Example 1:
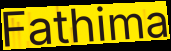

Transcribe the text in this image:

Fathima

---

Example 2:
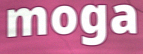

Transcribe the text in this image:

moga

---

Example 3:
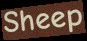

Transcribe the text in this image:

Sheep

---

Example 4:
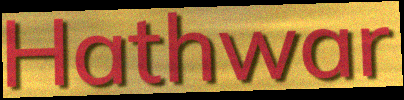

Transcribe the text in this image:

Hathwar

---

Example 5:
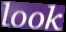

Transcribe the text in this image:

look